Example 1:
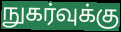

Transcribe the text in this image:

நுகர்வுக்கு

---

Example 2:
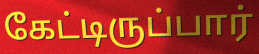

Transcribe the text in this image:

கேட்டிருப்பார்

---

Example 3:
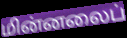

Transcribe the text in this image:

மின்னலைப்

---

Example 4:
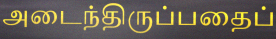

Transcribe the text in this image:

அடைந்திருப்பதைப்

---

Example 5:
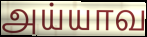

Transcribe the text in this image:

அய்யாவ